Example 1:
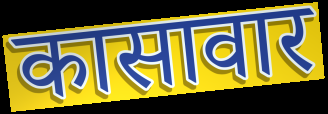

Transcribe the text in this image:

कासावार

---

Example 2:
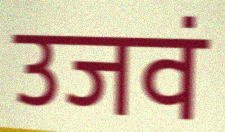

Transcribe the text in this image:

उजवं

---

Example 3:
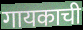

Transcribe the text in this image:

गायकाची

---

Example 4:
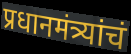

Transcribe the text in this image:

प्रधानमंत्र्यांचं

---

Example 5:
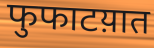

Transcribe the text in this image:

फुफाटय़ात